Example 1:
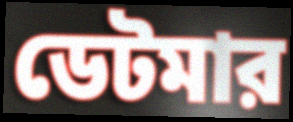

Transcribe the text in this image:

ডেটমার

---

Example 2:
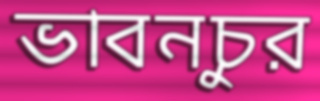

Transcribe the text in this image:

ভাবনচুর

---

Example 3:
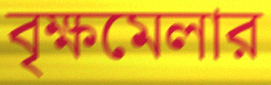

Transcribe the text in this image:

বৃক্ষমেলার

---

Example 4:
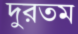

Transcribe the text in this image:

দুরতম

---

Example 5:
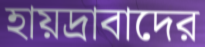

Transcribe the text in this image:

হায়দ্রাবাদের